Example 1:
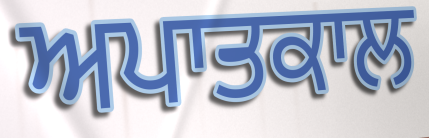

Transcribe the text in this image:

ਅਪਾਤਕਾਲ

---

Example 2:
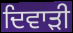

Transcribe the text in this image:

ਦਿਵਾੜੀ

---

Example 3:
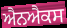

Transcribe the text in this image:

ਐਨਐਕਸ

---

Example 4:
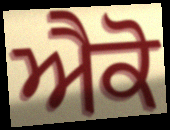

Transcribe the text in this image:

ਐਕੋ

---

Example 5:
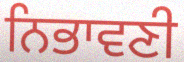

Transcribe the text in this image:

ਨਿਭਾਵਣੀ